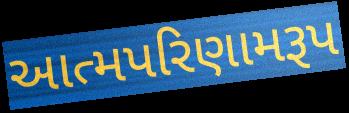
આત્મપરિણામરૂપ